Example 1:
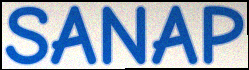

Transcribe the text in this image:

SANAP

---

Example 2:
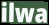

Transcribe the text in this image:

ilwa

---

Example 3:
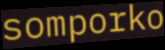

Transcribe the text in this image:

somporko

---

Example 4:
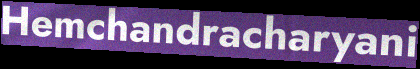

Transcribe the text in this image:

Hemchandracharyani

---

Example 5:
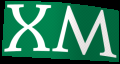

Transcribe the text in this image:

XM